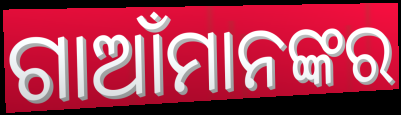
ଗାଆଁମାନଙ୍କର